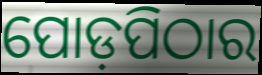
ପୋଡ଼ପିଠାର